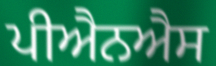
ਪੀਐਨਐਸ